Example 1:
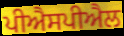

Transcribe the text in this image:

ਪੀਐਸਪੀਐਲ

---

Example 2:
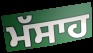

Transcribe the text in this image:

ਮੱਸਾਹ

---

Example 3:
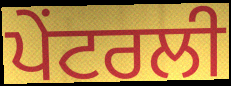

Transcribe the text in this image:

ਪੇਂਟਰਲੀ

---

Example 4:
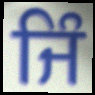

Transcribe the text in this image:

ਜਿੰ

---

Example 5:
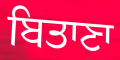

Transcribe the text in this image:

ਬਿਤਾਣਾ